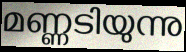
മണ്ണടിയുന്നു